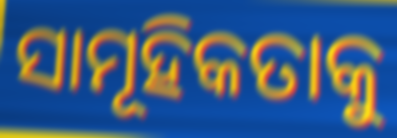
ସାମୂହିକତାକୁ